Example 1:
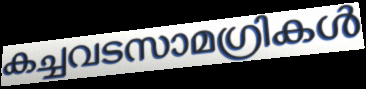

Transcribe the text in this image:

കച്ചവടസാമഗ്രികൾ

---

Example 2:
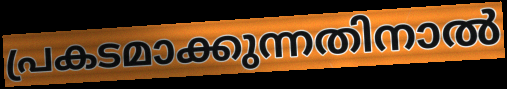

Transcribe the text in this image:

പ്രകടമാക്കുന്നതിനാൽ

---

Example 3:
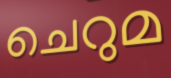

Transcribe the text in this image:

ചെറുമ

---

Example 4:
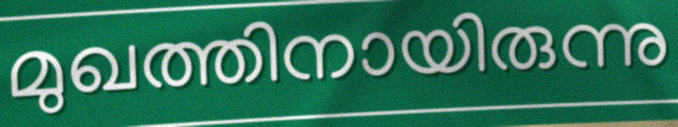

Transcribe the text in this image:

മുഖത്തിനായിരുന്നു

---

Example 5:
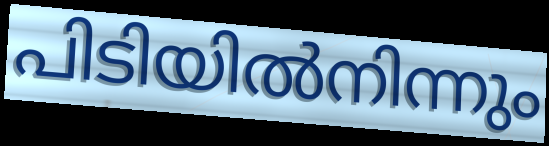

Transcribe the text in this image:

പിടിയിൽനിന്നും